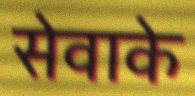
सेवाके